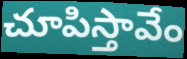
చూపిస్తావేం